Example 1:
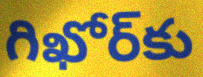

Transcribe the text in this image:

గిఖోర్‌కు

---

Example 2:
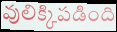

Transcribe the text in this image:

వులిక్కిపడింది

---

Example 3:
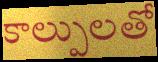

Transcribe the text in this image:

కాల్పులతో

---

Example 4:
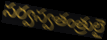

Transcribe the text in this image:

సర్వస్వతంత్రులై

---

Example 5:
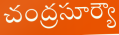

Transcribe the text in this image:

చంద్రసూర్యౌ